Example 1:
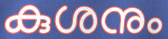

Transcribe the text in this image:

കുശനും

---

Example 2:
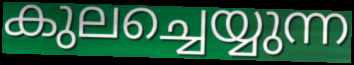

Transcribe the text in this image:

കുലച്ചെയ്യുന്ന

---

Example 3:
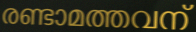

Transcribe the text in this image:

രണ്ടാമത്തവന്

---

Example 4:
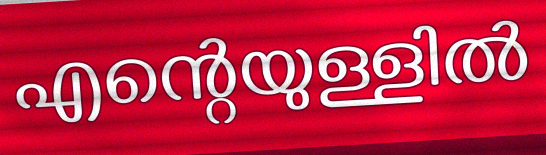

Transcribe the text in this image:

എന്റെയുള്ളിൽ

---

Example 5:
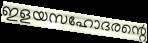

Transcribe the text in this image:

ഇളയസഹോദരന്റെ